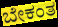
ಬೇಕಂತ